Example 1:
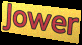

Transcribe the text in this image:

Jower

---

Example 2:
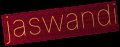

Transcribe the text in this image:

jaswandi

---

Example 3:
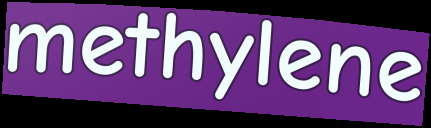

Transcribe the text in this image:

methylene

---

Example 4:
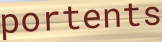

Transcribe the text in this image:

portents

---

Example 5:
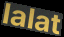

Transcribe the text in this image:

lalat